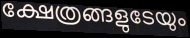
ക്ഷേത്രങ്ങളുടേയും